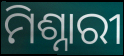
ମିଶ୍ନାରୀ